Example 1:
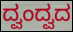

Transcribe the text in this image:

ದ್ವಂದ್ವದ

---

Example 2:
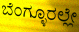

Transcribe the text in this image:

ಬೆಂಗ್ಳೂರಲ್ಲೇ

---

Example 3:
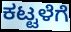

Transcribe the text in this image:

ಕಟ್ಟಳೆಗೆ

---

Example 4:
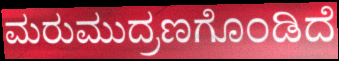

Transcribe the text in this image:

ಮರುಮುದ್ರಣಗೊಂಡಿದೆ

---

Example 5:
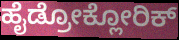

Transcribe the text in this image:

ಹೈಡ್ರೋಕ್ಲೋರಿಕ್